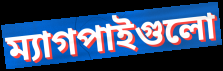
ম্যাগপাইগুলো